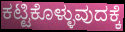
ಕಟ್ಟಿಕೊಳ್ಳುವುದಕ್ಕೆ